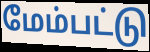
மேம்பட்டு